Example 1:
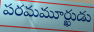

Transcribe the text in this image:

పరమమూర్ఖుడు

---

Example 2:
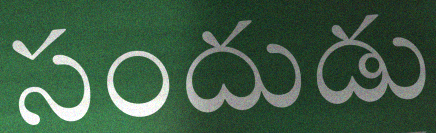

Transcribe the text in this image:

సందుడు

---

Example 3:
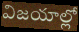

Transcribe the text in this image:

విజయాల్లో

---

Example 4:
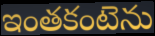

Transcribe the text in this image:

ఇంతకంటెను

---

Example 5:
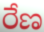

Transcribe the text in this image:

రేణ